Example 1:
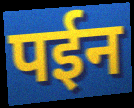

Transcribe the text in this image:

पईन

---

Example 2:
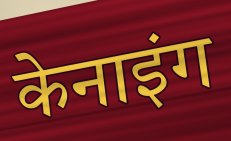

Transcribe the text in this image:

केनाइंग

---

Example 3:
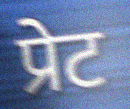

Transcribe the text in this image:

प्रेट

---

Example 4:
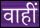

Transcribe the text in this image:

वाहीं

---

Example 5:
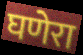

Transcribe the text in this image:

घणेरा